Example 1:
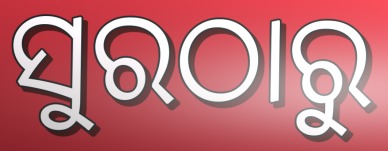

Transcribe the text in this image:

ସୁରଠାରୁ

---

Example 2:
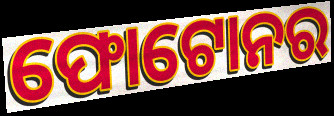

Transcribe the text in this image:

ଫୋଟୋନର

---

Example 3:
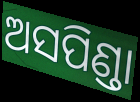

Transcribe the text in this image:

ଅସପିଣ୍ଡା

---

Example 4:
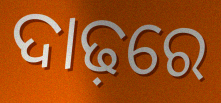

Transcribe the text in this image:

ଦାଢ଼ରେ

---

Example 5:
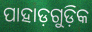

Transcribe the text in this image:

ପାହାଡ଼ଗୁଡ଼ିକ